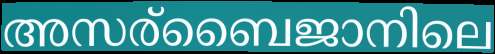
അസര്ബൈജാനിലെ